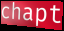
chapt